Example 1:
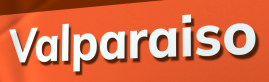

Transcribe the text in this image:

Valparaiso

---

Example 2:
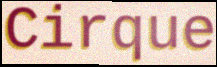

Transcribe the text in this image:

Cirque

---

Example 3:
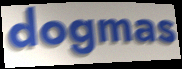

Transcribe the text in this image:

dogmas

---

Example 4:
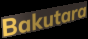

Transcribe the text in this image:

Bakutara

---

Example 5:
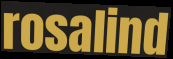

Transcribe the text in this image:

rosalind